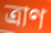
ত্ৰাণ